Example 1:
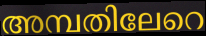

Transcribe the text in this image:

അമ്പതിലേറെ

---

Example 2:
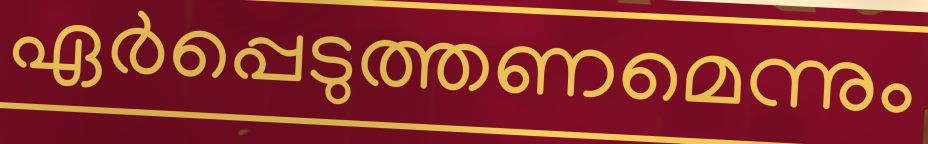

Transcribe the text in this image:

ഏർപ്പെടുത്തണമെന്നും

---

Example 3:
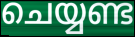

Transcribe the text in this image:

ചെയ്യണ്ട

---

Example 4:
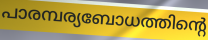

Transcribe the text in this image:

പാരമ്പര്യബോധത്തിന്റെ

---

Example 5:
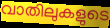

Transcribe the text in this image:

വാതിലുകളുടെ